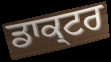
ਡਾਕ੍ਟਰ